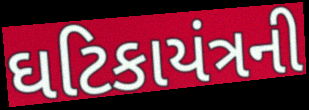
ઘટિકાયંત્રની